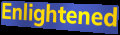
Enlightened